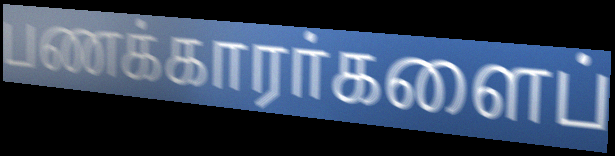
பணக்காரர்களைப்